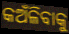
କଅଁଳିବାକୁ